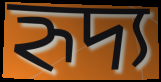
হৃদ্য